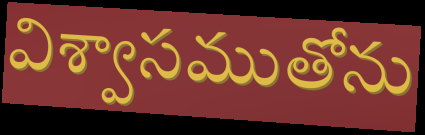
విశ్వాసముతోను